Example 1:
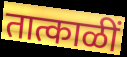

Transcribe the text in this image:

तात्काळीं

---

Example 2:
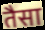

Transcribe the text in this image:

तैसा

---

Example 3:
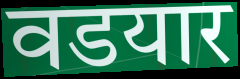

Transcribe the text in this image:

वडयार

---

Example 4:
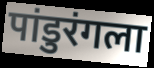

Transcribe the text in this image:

पांडुरंगला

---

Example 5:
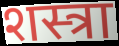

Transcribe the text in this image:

शस्त्रा